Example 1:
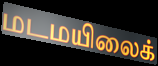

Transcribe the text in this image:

மடமயிலைக்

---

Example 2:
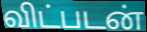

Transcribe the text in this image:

விட்படன்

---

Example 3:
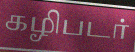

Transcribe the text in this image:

கழிபடர்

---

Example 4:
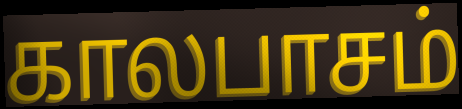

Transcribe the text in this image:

காலபாசம்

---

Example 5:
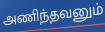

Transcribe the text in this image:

அணிந்தவனும்